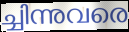
ച്ചിന്നുവരെ